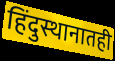
हिंदुस्थानातही